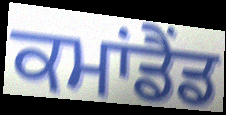
ਕਮਾਂਡੈਂਡ